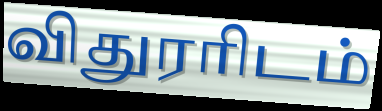
விதுரரிடம்